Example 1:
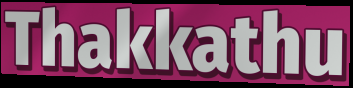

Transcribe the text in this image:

Thakkathu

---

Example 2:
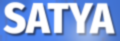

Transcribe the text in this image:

SATYA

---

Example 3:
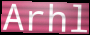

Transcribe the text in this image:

Arhl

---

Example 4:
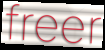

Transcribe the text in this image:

freer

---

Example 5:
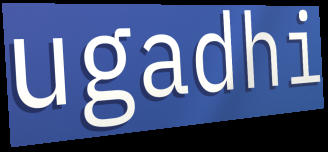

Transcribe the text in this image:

ugadhi